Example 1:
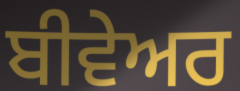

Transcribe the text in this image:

ਬੀਵੇਅਰ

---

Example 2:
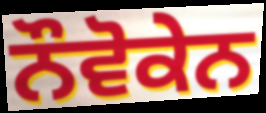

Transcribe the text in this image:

ਨੌਵੋਕੇਨ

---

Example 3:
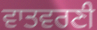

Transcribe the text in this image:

ਵਾਤਵਰਣੀ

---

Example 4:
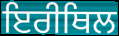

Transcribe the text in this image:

ਇਰੀਥਿਲ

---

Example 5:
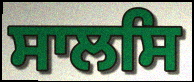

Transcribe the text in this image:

ਸਾਲਸਿ